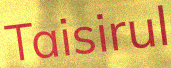
Taisirul